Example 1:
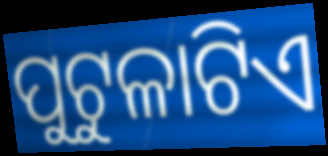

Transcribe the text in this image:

ପୁଟୁଳାଟିଏ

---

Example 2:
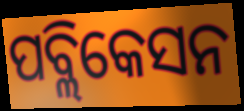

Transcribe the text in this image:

ପବ୍ଲିକେସନ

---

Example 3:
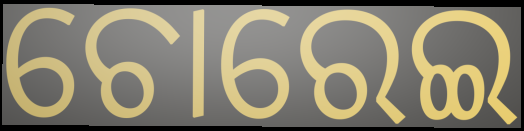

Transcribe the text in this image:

ଚୋରେଇ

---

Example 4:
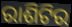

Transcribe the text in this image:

ରାଶିଟିର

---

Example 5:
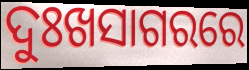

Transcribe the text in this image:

ଦୁଃଖସାଗରରେ